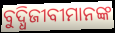
ବୁଦ୍ଧିଜୀବୀମାନଙ୍କ